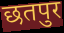
छतपुर